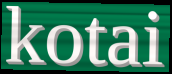
kotai